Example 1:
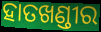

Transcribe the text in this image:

ହାତଖଣ୍ଡୀର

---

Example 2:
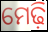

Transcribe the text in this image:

ମେଢ଼ି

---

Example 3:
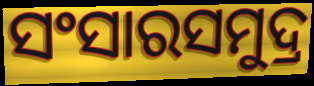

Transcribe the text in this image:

ସଂସାରସମୁଦ୍ର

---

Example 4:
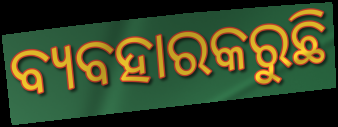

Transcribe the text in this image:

ବ୍ୟବହାରକରୁଛି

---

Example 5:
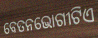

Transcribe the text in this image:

ବେତନଭୋଗୀଟିଏ